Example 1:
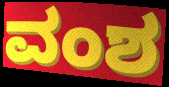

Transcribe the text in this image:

ವಂಶ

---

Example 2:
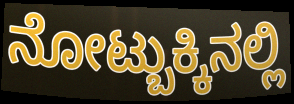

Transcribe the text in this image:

ನೋಟ್ಬುಕ್ಕಿನಲ್ಲಿ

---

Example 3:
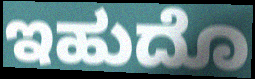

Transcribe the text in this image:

ಇಹುದೊ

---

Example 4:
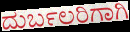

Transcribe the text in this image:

ದುರ್ಬಲರಿಗಾಗಿ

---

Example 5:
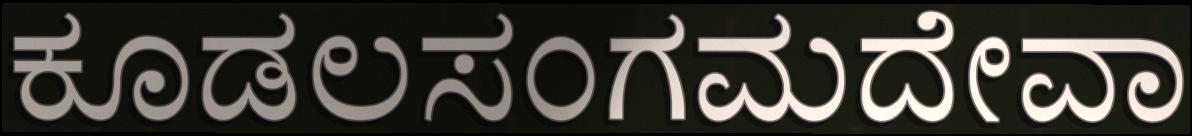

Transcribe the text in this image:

ಕೂಡಲಸಂಗಮದೇವಾ